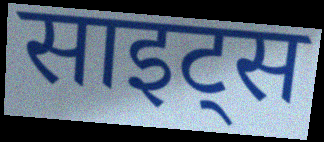
साइट्स